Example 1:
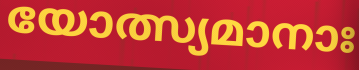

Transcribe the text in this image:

യോത്സ്യമാനാഃ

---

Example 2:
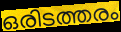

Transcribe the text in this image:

ഒരിടത്തരം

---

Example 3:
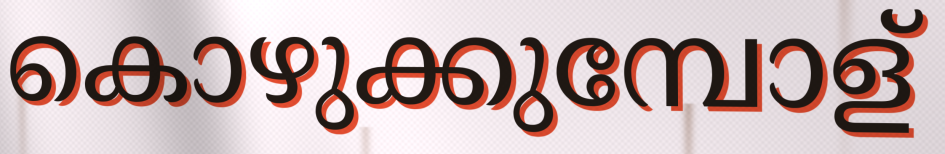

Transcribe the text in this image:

കൊഴുക്കുമ്പോള്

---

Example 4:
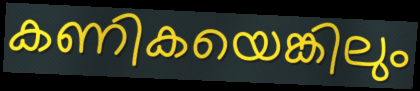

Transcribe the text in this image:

കണികയെങ്കിലും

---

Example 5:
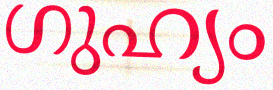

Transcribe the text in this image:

ഗുഹ്യം